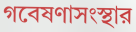
গবেষণাসংস্থার